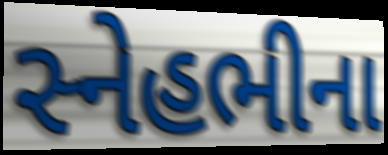
સ્નેહભીના